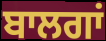
ਬਾਲਗਾਂ